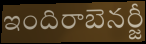
ఇందిరాబెనర్జీ